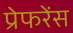
प्रेफरेंस